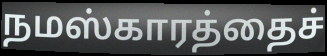
நமஸ்காரத்தைச்